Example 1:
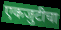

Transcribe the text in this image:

एकजुटीचा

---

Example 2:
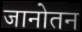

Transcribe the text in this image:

जानोतन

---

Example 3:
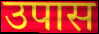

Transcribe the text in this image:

उपास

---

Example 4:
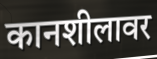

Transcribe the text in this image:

कानशीलावर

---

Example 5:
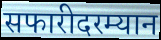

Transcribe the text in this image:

सफारीदरम्यान